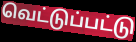
வெட்டுப்பட்டு